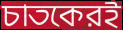
চাতকেরই